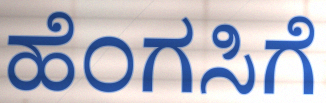
ಹೆಂಗಸಿಗೆ